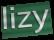
lizy